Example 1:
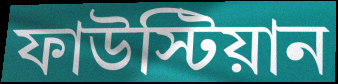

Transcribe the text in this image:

ফাউস্টিয়ান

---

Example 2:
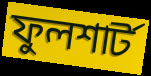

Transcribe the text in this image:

ফুলশার্ট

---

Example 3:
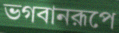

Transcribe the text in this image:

ভগবানরূপে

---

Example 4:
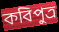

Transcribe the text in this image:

কবিপুত্র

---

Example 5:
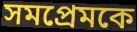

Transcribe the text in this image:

সমপ্রেমকে